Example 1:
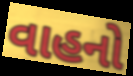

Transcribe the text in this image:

વાહનો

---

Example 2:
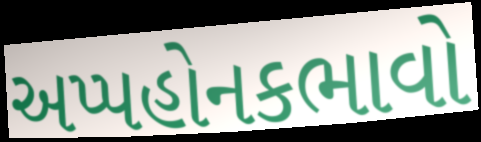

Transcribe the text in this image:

અપ્પહોનકભાવો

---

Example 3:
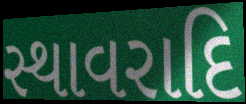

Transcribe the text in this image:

સ્થાવરાદિ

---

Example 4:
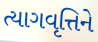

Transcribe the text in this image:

ત્યાગવૃત્તિને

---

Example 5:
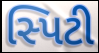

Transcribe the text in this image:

સ્પિટી